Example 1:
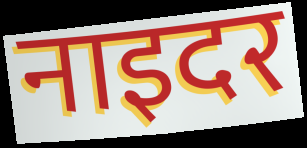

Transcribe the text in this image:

नाइदर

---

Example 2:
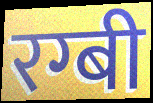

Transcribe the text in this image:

रग्‍बी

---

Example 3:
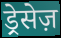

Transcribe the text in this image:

ड्रेसेज़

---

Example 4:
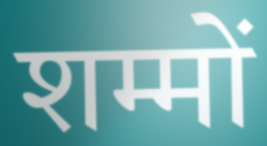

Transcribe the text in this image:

शम्मों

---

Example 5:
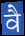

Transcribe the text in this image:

वै